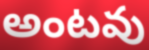
అంటవు